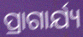
ପ୍ରାଗାର୍ଯ୍ୟ